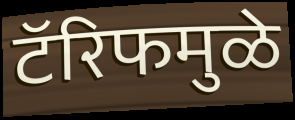
टॅरिफमुळे